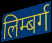
लिम्बर्ग